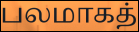
பலமாகத்